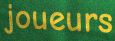
joueurs